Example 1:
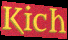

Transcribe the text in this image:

Kich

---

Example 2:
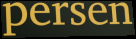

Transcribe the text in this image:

persen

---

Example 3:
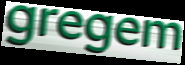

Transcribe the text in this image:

gregem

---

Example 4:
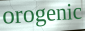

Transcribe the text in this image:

orogenic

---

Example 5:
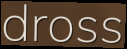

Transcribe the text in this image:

dross